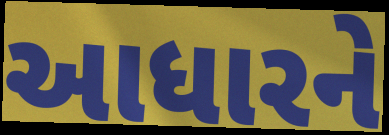
આધારને